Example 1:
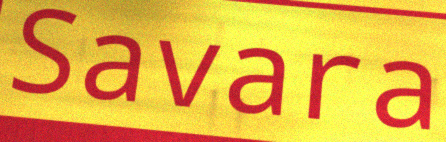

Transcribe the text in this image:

Savara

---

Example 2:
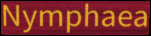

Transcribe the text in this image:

Nymphaea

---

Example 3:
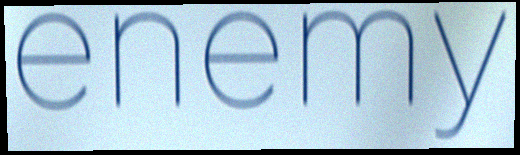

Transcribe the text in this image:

enemy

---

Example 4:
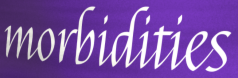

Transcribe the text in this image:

morbidities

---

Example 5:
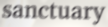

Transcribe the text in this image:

sanctuary